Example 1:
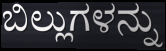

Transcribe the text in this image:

ಬಿಲ್ಲುಗಳನ್ನು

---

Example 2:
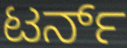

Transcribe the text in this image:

ಟರ್ನ್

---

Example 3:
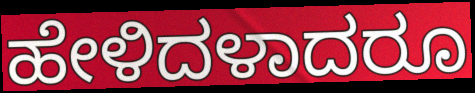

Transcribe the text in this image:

ಹೇಳಿದಳಾದರೂ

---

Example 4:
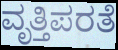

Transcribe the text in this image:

ವೃತ್ತಿಪರತೆ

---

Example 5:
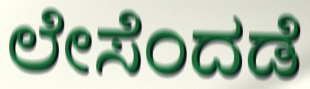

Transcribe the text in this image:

ಲೇಸೆಂದಡೆ